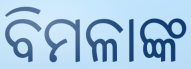
ବିମଳାଙ୍କ